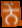
ਨੇਂ